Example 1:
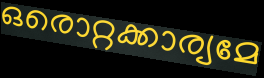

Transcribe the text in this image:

ഒരൊറ്റക്കാര്യമേ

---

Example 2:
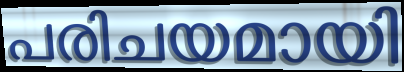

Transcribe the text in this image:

പരിചയമായി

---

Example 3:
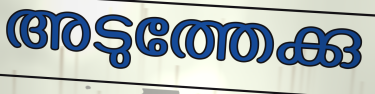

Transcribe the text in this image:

അടുത്തേക്കു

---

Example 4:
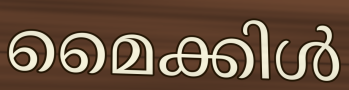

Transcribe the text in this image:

മൈക്കിൾ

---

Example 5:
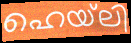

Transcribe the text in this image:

ഹെയ്‌ലി